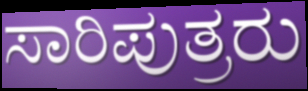
ಸಾರಿಪುತ್ರರು